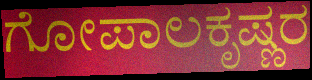
ಗೋಪಾಲಕೃಷ್ಣರ